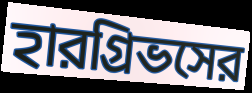
হারগ্রিভসের